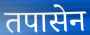
तपासेन